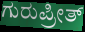
ಗುರುಪ್ರೀತ್